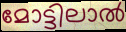
മോട്ടിലാൽ